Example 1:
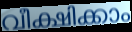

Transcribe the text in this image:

വീക്ഷിക്കാം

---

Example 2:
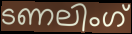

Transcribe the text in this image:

ടണലിംഗ്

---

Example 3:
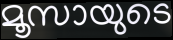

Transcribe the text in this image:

മൂസായുടെ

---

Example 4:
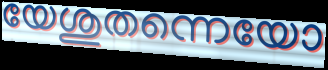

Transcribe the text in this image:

യേശുതന്നെയോ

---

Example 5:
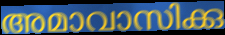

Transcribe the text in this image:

അമാവാസിക്കു